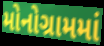
મોનોગ્રામમાં